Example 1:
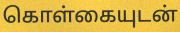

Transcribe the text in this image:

கொள்கையுடன்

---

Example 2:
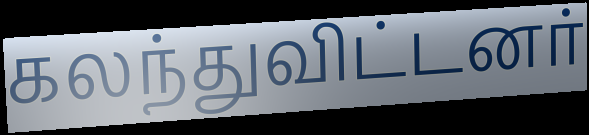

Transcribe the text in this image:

கலந்துவிட்டனர்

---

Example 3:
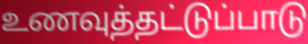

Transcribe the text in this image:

உணவுத்தட்டுப்பாடு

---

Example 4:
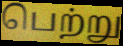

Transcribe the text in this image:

பெற்று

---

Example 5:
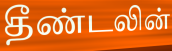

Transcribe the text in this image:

தீண்டலின்